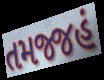
તમજ્જહં